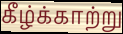
கீழ்க்காற்று